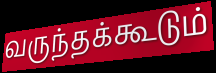
வருந்தக்கூடும்